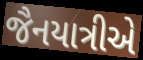
જૈનયાત્રીએ